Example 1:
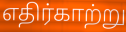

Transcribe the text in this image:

எதிர்காற்று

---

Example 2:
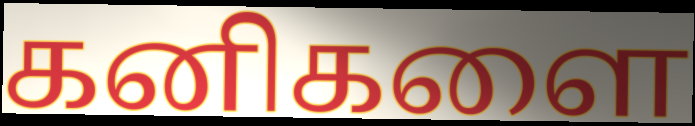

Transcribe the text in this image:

கனிகளை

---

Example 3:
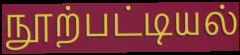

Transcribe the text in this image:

நூற்பட்டியல்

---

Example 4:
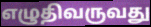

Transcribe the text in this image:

எழுதிவருவது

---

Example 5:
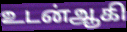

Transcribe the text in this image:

உடன்ஆகி